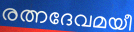
രത്നദേവമയീ